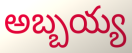
అబ్బయ్య